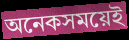
অনেকসময়েই